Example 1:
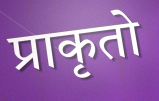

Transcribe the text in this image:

प्राकृतो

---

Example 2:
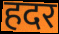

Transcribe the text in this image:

हदर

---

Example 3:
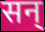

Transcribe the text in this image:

सन्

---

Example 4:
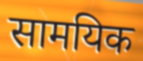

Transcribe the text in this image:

सामयिक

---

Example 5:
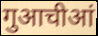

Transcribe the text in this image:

गुआचीआं